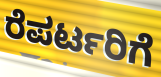
ರೆಪರ್ಟರಿಗೆ